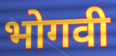
भोगवी